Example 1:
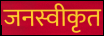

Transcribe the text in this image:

जनस्वीकृत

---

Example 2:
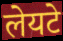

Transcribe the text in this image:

लेयटे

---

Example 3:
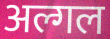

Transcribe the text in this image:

अल्गल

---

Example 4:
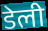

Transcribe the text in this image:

डेली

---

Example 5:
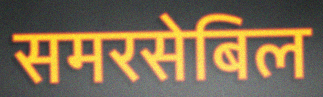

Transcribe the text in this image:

समरसेबिल